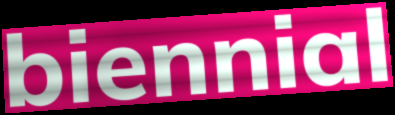
biennial